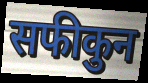
सफीकुन